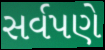
સર્વપણે